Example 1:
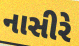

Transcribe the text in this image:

નાસીરે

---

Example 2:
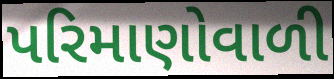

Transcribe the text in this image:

પરિમાણોવાળી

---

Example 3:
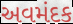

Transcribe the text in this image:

અવમંદક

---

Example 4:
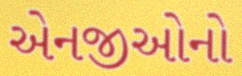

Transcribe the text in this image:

એનજીઓનો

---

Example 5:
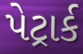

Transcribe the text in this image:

પેટ્રાર્ક